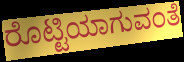
ರೊಟ್ಟಿಯಾಗುವಂತೆ